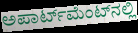
ಅಪಾರ್ಟ್‌ಮೆಂಟ್‌ನಲ್ಲಿ